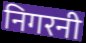
निगरनी